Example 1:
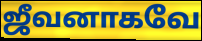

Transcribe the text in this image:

ஜீவனாகவே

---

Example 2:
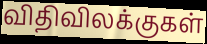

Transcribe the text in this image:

விதிவிலக்குகள்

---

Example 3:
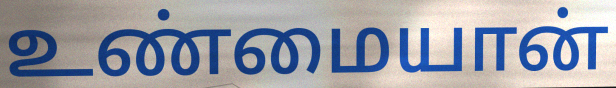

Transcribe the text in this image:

உண்மையான்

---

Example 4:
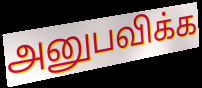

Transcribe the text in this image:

அனுபவிக்க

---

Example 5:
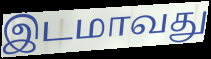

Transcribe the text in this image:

இடமாவது